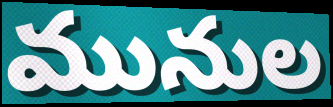
మునుల